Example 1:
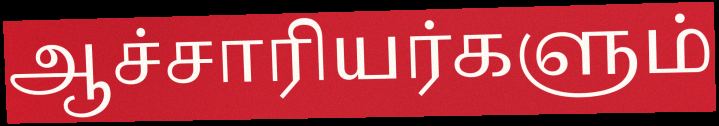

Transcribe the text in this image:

ஆச்சாரியர்களும்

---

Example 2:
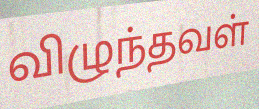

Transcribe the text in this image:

விழுந்தவள்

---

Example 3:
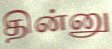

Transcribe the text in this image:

தின்னு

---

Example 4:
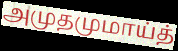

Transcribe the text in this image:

அமுதமுமாய்த்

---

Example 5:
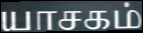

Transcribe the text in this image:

யாசகம்